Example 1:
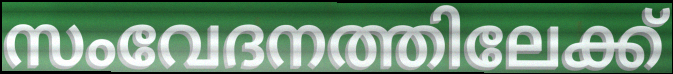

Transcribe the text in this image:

സംവേദനത്തിലേക്ക്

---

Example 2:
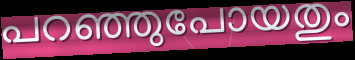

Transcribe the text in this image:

പറഞ്ഞുപോയതും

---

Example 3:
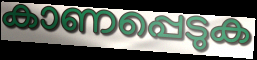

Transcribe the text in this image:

കാണപ്പെടുക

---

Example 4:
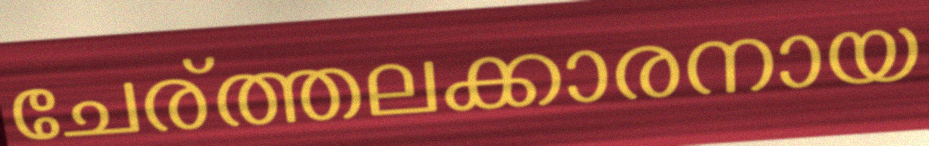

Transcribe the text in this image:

ചേര്ത്തലക്കാരനായ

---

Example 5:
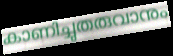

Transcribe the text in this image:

കാണിച്ചുതരുവാനും